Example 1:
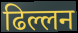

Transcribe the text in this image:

ढिल्लन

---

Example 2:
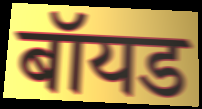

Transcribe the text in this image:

बॉयड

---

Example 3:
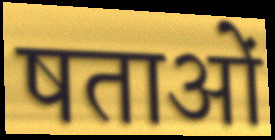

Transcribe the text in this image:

षताओं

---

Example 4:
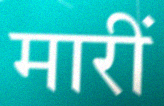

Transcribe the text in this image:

मारीं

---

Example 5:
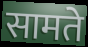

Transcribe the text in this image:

सामते